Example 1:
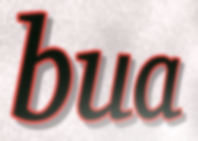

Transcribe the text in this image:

bua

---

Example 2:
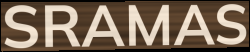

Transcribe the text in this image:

SRAMAS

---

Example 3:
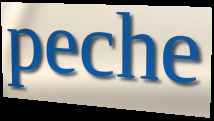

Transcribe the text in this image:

peche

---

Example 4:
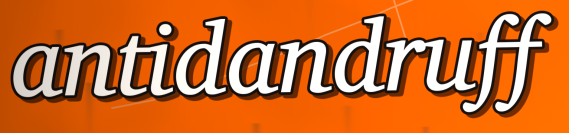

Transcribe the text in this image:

antidandruff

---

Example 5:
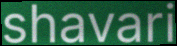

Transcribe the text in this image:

shavari